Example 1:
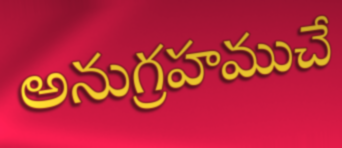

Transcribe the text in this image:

అనుగ్రహముచే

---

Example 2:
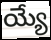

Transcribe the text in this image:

య్యే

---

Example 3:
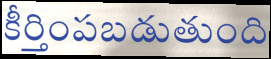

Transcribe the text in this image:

కీర్తింపబడుతుంది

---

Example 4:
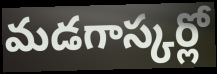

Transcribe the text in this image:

మడగాస్కర్లో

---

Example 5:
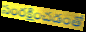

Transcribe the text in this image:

సంరక్షించడంతో